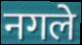
नगले